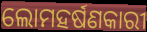
ଲୋମହର୍ଷଣକାରୀ